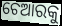
ଚେଆରକୁ